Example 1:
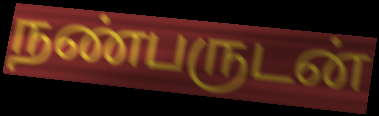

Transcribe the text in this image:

நண்பருடன்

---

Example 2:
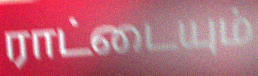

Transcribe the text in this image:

ராட்டையும்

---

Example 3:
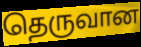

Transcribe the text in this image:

தெருவான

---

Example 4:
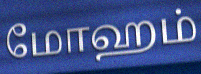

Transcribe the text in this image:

மோஹம்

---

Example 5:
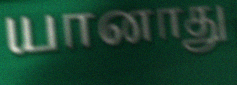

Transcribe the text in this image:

யானாது